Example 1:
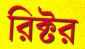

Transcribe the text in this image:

রিক্টর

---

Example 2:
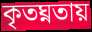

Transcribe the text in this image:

কৃতঘ্নতায়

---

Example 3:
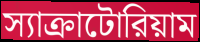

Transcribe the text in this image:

স্যাক্রাটোরিয়াম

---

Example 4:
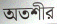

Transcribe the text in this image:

অতশীর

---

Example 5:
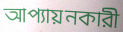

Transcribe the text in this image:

আপ্যায়নকারী